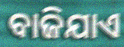
ବାଜିଯାଏ